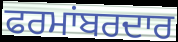
ਫਰਮਾਂਬਰਦਾਰ